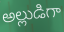
అల్లుడిగా